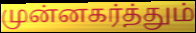
முன்னகர்த்தும்